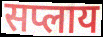
सप्लाय